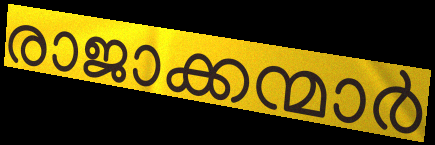
രാജാക്കന്മാർ